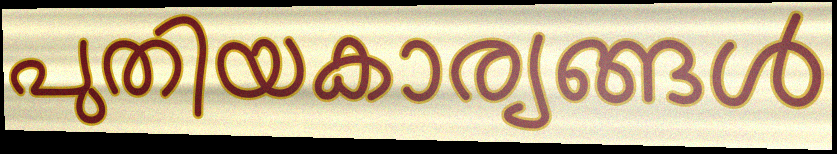
പുതിയകാര്യങ്ങൾ